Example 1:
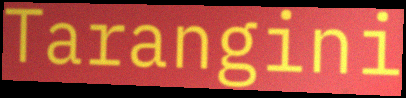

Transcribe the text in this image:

Tarangini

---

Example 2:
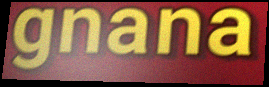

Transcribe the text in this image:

gnana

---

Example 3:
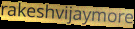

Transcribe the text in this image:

rakeshvijaymore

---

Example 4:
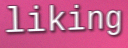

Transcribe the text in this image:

liking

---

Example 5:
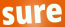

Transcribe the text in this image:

sure